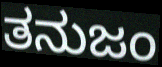
ತನುಜಂ